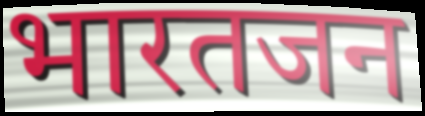
भारतजन